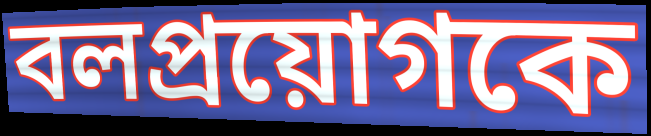
বলপ্রয়োগকে